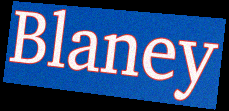
Blaney